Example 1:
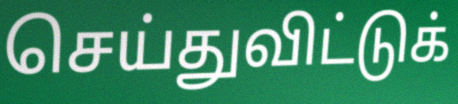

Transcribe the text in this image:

செய்துவிட்டுக்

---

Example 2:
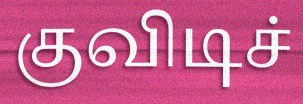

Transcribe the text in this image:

குவிடிச்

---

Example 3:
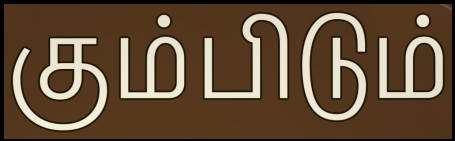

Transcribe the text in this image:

கும்பிடும்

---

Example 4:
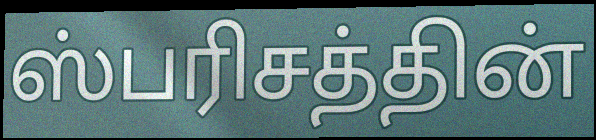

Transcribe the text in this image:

ஸ்பரிசத்தின்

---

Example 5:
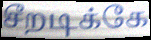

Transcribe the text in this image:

சீறடிக்கே